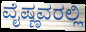
ವೈಷ್ಣವರಲ್ಲಿ